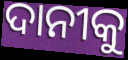
ଦାନୀକୁ